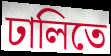
ঢালিতে